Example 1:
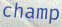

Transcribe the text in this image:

champ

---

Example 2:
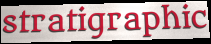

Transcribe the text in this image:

stratigraphic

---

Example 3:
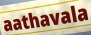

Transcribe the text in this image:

aathavala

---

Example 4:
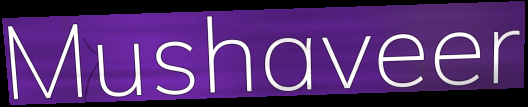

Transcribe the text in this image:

Mushaveer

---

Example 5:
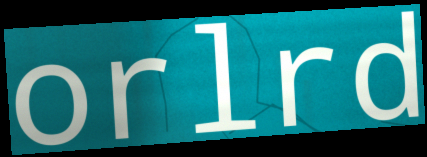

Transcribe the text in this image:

orlrd